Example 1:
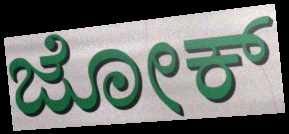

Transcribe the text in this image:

ಜೋಕ್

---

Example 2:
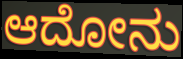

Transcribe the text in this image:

ಆದೋನು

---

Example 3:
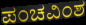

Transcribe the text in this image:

ಪಂಚವಿಂಶ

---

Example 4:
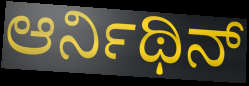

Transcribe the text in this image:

ಆರ್ನಿಥಿನ್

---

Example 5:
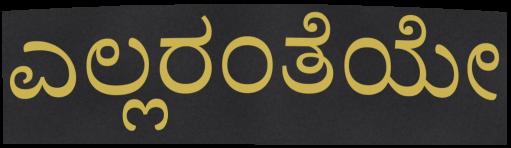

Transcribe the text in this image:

ಎಲ್ಲರಂತೆಯೇ